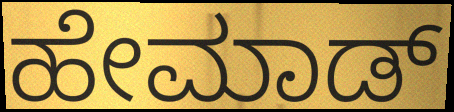
ಹೇಮಾಡ್